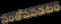
సంతోషపడటం